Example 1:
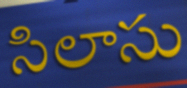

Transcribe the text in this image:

సిలాసు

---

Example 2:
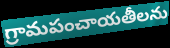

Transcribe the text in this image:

గ్రామపంచాయతీలను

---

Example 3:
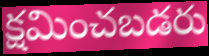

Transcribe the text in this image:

క్షమించబడరు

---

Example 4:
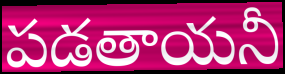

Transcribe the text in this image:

పడతాయనీ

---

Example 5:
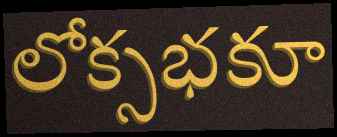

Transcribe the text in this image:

లోక్సభకూ